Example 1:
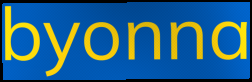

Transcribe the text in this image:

byonna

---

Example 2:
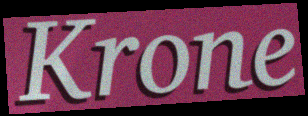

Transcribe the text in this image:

Krone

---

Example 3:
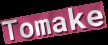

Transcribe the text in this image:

Tomake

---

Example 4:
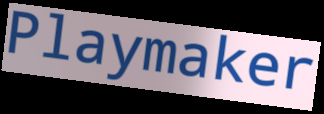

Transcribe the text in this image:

Playmaker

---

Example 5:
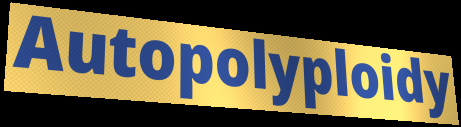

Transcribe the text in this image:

Autopolyploidy